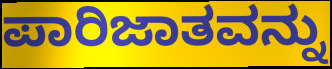
ಪಾರಿಜಾತವನ್ನು